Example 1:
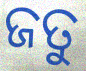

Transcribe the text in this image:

ଜତୁ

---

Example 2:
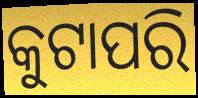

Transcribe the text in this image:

କୁଟାପରି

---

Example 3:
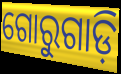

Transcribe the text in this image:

ଗୋରୁଗାଡ଼ି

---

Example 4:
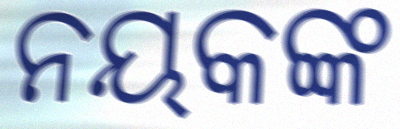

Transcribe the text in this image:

ନୟକଙ୍କ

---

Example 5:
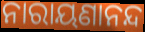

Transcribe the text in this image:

ନାରାୟଣାନନ୍ଦ